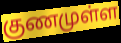
குணமுள்ள